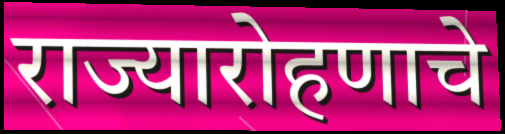
राज्यारोहणाचे